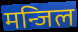
मन्जिल